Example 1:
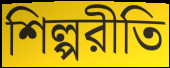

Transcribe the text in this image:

শিল্পরীতি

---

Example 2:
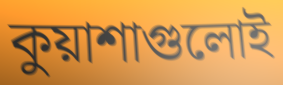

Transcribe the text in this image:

কুয়াশাগুলোই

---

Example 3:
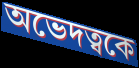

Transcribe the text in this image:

অভেদত্বকে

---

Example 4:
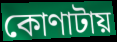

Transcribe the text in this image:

কোণাটায়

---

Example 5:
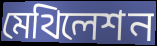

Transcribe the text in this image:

মেথিলেশন